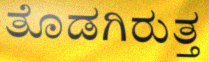
ತೊಡಗಿರುತ್ತ